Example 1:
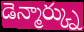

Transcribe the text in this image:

డెన్మార్క్ను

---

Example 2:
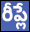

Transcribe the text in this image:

రీప్లే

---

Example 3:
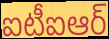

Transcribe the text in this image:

ఐటీఐఆర్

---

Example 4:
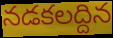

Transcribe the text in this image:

నడకలద్దిన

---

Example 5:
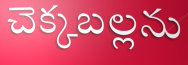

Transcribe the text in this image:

చెక్కబల్లను